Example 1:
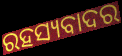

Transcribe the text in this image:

ରହସ୍ୟବାଦର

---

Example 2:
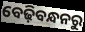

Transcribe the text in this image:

ବେଢ଼ିବନ୍ଧନରୁ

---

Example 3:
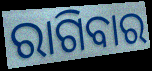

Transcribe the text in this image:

ରାଗିବାର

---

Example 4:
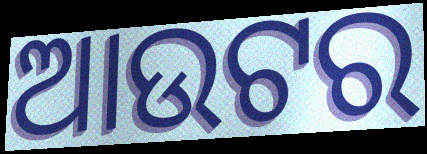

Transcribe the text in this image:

ଆଉଟର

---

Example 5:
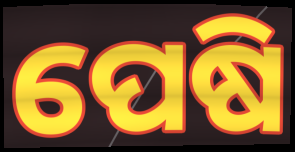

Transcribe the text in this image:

ପେଷି